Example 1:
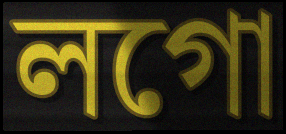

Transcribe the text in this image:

লগো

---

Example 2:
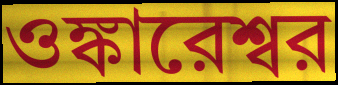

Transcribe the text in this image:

ওঙ্কারেশ্বর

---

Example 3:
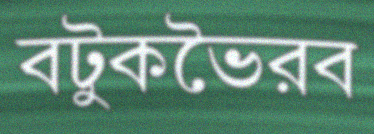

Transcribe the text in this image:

বটুকভৈরব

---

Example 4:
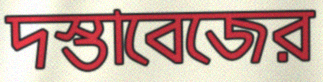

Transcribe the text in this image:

দস্তাবেজের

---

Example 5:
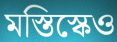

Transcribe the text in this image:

মস্তিস্কেও